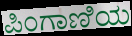
ಪಿಂಗಾಣಿಯ